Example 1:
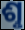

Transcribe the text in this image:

ଶୢ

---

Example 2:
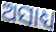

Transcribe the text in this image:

ଅସାଧ୍ୟ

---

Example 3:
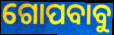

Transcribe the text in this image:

ଗୋପବାବୁ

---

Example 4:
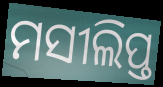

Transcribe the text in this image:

ମସୀଲିପ୍ତ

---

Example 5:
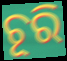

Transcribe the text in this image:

ଚୂରି